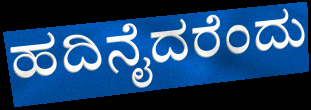
ಹದಿನೈದರೆಂದು